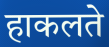
हाकलते